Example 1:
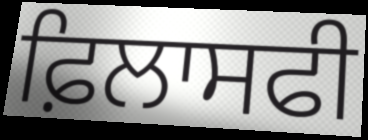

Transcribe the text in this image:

ਫ਼ਿਲਾਸਫੀ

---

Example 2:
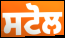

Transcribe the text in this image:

ਸਟੋਲ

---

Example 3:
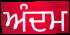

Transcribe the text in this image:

ਅੰਦਮ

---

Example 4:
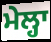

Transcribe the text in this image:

ਮੇਲ੍ਹਾ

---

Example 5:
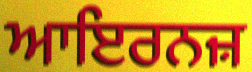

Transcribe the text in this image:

ਆਇਰਨਜ਼